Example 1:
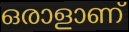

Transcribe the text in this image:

ഒരാളാണ്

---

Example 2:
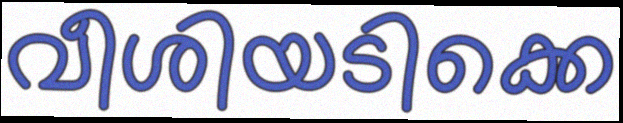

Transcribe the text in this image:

വീശിയടിക്കെ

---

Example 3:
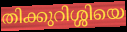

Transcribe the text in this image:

തിക്കുറിശ്ശിയെ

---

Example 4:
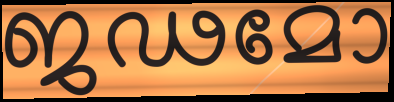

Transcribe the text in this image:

ജഢമോ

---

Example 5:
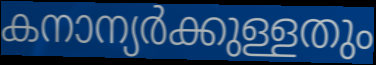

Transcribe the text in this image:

കനാന്യർക്കുള്ളതും